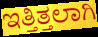
ಇತ್ತಿತ್ತಲಾಗಿ